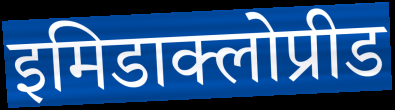
इमिडाक्लोप्रीड